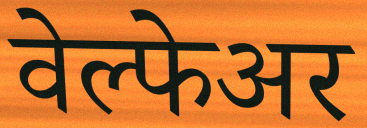
वेल्फेअर